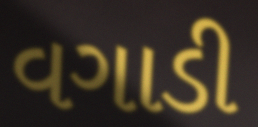
વગાડી